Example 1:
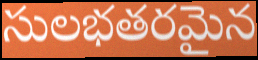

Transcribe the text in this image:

సులభతరమైన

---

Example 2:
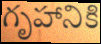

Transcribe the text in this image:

గృహానికి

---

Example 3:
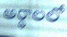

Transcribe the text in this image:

అర్థాలలో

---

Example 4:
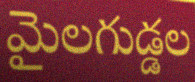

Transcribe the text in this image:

మైలగుడ్డల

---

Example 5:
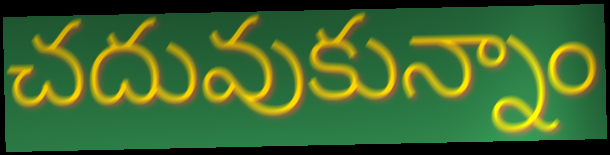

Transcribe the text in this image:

చదువుకున్నాం